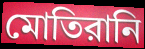
মোতিরানি